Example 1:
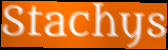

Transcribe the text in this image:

Stachys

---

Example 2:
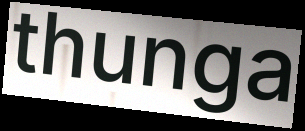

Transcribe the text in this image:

thunga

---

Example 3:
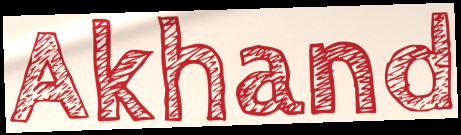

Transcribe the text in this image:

Akhand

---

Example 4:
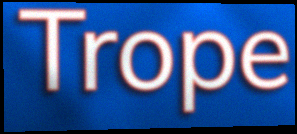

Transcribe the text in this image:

Trope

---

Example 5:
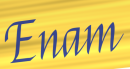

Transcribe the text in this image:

Enam